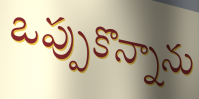
ఒప్పుకొన్నాను